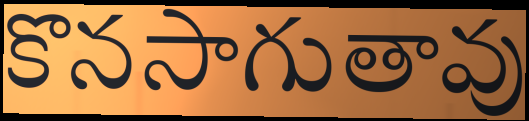
కొనసాగుతావు